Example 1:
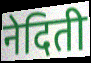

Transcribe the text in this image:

नेदिती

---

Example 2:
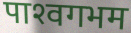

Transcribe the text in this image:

पाश्वगभम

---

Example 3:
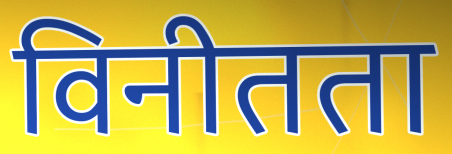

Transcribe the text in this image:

विनीतता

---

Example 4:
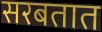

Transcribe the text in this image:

सरबतात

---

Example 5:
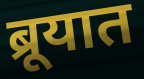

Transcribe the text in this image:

ब्रूयात